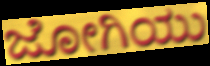
ಜೋಗಿಯು